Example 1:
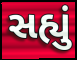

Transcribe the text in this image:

સહ્યું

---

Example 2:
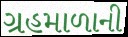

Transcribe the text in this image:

ગ્રહમાળાની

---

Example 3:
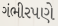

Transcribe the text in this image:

ગંભીરપણે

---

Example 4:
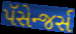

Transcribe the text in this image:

પૅસેન્જર્સ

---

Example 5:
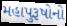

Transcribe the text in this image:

મહાપુરૂષોનો